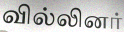
வில்லினர்